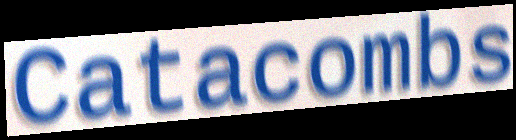
Catacombs